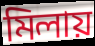
মিলায়